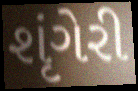
શૃંગેરી